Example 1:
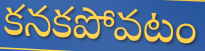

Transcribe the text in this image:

కనకపోవటం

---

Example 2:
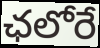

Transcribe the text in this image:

ఛలోరే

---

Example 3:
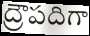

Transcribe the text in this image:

ద్రౌపదిగా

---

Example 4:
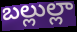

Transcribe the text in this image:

బల్లుల్లా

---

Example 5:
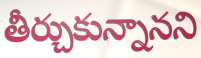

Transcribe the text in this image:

తీర్చుకున్నానని